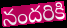
నందరికి